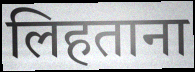
लिहताना